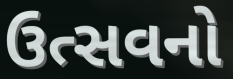
ઉત્સવનો